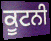
ਕੂਟਨੀ